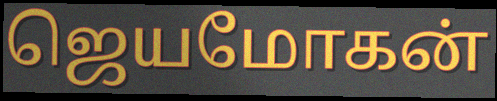
ஜெயமோகன்